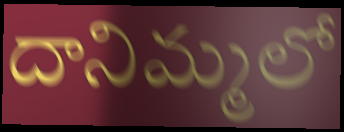
దానిమ్మలో